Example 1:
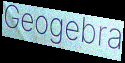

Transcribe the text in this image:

Geogebra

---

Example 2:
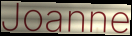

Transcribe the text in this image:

Joanne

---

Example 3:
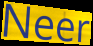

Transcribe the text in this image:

Neer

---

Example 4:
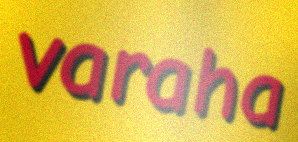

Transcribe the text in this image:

varaha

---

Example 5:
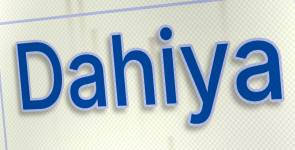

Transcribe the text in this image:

Dahiya